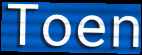
Toen